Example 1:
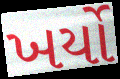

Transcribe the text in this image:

ખર્યો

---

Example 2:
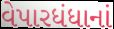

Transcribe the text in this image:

વેપારધંધાનાં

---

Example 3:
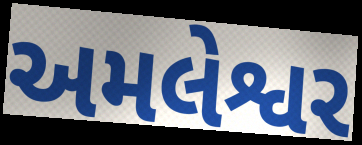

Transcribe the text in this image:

અમલેશ્વર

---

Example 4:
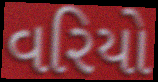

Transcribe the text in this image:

વરિયો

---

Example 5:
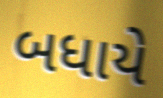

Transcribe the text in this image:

બધાયે